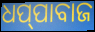
ଧପ୍‌ପାବାଜ